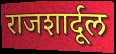
राजशार्दूल